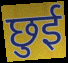
छुई